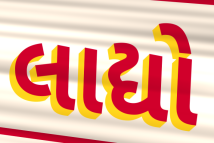
લાદ્યો